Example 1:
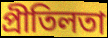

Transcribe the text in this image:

প্ৰীতিলতা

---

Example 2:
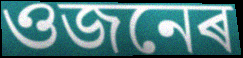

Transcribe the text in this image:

ওজনেৰ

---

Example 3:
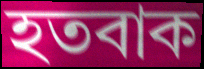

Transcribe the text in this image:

হতবাক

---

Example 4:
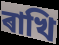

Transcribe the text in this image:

ৰাখি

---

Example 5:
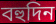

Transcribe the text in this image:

বহুদিন